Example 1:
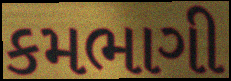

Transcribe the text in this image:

કમભાગી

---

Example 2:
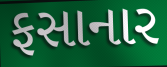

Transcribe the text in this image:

ફસાનાર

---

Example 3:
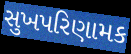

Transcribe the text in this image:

સુખપરિણામક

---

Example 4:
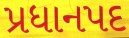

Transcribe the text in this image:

પ્રધાનપદ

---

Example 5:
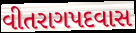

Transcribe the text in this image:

વીતરાગપદવાસ